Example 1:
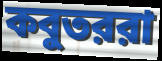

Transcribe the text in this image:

কবুতররা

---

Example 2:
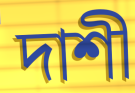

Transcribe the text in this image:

দাশী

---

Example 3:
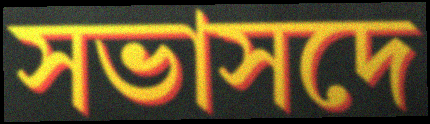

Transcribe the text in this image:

সভাসদে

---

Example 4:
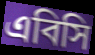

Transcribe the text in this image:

এবিসি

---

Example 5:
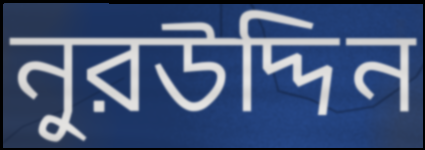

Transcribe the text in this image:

নুরউদ্দিন